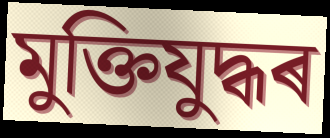
মুক্তিযুদ্ধৰ